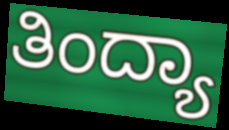
ತಿಂದ್ಯಾ